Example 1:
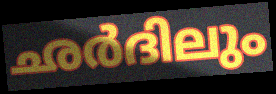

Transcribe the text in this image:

ഛർദിലും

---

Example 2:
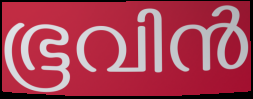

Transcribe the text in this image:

ഭൂവിൻ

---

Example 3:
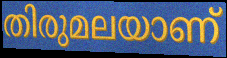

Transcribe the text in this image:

തിരുമലയാണ്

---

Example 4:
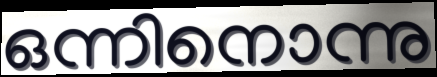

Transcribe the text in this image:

ഒന്നിനൊന്നു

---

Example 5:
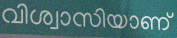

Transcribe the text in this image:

വിശ്വാസിയാണ്